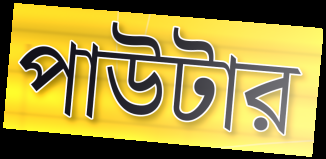
পাউটার